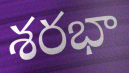
శరభా